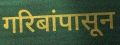
गरिबांपासून